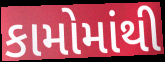
કામોમાંથી